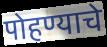
पोहण्याचे